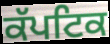
ਕੱਪਟਿਕ